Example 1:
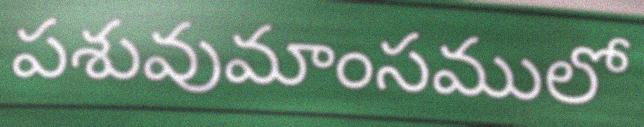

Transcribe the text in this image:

పశువుమాంసములో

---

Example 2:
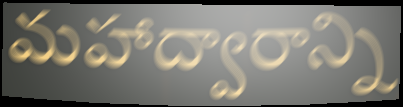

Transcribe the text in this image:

మహాద్వారాన్ని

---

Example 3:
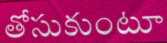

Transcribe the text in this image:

తోసుకుంటూ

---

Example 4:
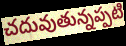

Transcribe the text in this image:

చదువుతున్నప్పటి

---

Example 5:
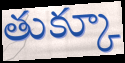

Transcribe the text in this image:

తుక్కూ